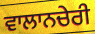
ਵਾਲਾਨਚੇਰੀ